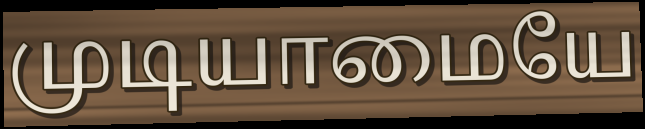
முடியாமையே